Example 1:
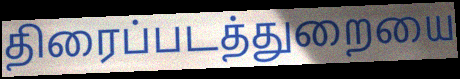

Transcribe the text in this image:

திரைப்படத்துறையை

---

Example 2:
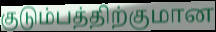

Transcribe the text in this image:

குடும்பத்திற்குமான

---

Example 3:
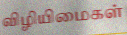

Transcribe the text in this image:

விழியிமைகள்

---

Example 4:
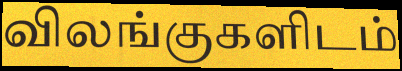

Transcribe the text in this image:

விலங்குகளிடம்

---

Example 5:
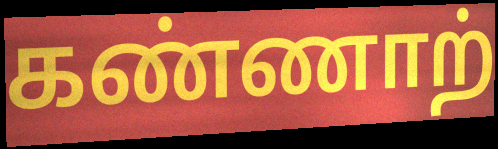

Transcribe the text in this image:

கண்ணாற்